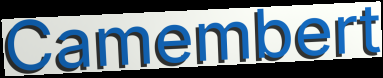
Camembert